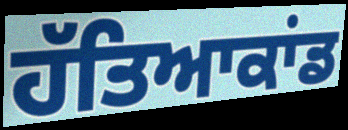
ਹੱਤਿਆਕਾਂਡ